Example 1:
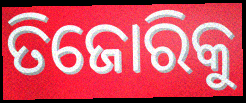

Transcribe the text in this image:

ତିଜୋରିକୁ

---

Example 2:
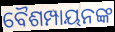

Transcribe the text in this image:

ବୈଶମ୍ପାୟନଙ୍କ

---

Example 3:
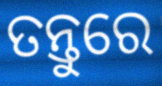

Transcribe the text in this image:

ତନ୍ତୁରେ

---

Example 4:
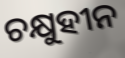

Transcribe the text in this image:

ଚକ୍ଷୁହୀନ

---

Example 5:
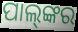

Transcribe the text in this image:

ପାଲ୍‍ଙ୍କର